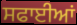
ਸਫਾਈਆਂ